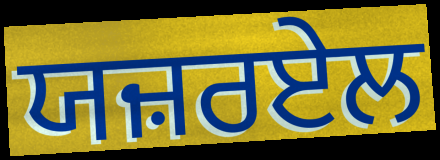
ਯਜ਼ਰਏਲ